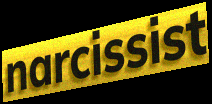
narcissist